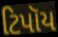
ટિપૉય